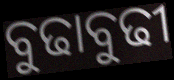
ବୁଢାବୁଢୀ